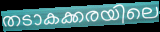
തടാകക്കരയിലെ